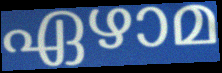
ഏഴാമ